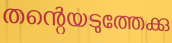
തന്റെയടുത്തേക്കു